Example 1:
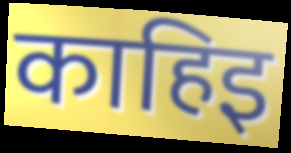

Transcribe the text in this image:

काहिइ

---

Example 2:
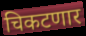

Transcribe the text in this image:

चिकटणार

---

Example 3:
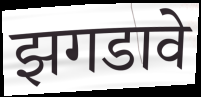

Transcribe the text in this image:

झगडावे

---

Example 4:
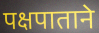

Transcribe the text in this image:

पक्षपाताने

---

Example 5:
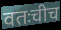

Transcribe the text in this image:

वतःचीच